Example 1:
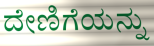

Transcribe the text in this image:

ದೇಣಿಗೆಯನ್ನು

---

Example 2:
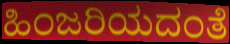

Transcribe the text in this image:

ಹಿಂಜರಿಯದಂತೆ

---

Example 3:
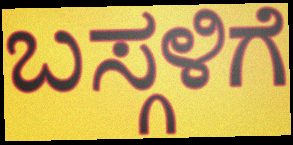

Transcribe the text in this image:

ಬಸ್ಗಳಿಗೆ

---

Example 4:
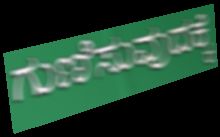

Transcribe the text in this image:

ಗುಣಿಸುವುದಕ್ಕೆ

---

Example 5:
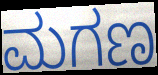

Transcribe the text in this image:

ಮಗಣ